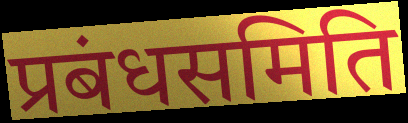
प्रबंधसमिति